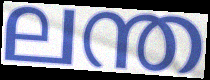
ലന്ത